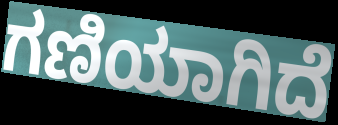
ಗಣಿಯಾಗಿದೆ